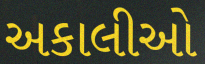
અકાલીઓ